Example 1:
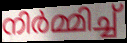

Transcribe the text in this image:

നിർമ്മിച്ച്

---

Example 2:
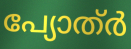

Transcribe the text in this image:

പ്യോത്ർ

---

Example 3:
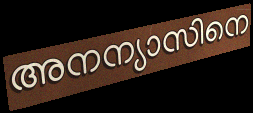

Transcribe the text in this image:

അനന്യാസിനെ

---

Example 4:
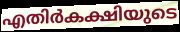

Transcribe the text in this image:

എതിർകക്ഷിയുടെ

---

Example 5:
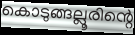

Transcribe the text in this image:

കൊടുങ്ങല്ലൂരിന്റെ